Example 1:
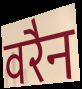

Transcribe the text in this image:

वरैन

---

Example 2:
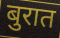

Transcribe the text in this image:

बुरात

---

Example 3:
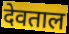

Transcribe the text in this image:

देवताल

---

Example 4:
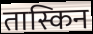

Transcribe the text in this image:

तास्किन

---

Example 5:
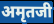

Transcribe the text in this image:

अमृतजी